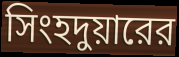
সিংহদুয়ারের